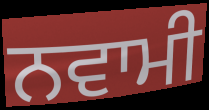
ਨਵਾਮੀ